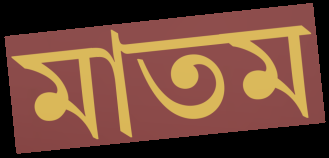
মাতম